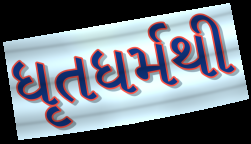
ધૃતધર્મથી